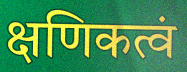
क्षणिकत्वं